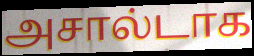
அசால்டாக